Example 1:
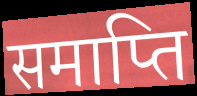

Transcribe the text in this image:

समाप्‍ति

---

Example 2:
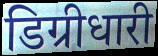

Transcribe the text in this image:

डिग्रीधारी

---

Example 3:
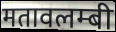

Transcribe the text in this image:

मतावलम्बी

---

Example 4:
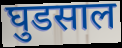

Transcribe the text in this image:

घुडसाल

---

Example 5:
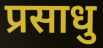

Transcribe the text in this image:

प्रसाधु